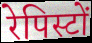
रेपिस्टों